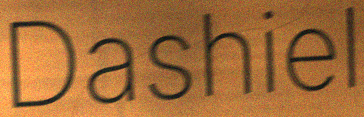
Dashiel